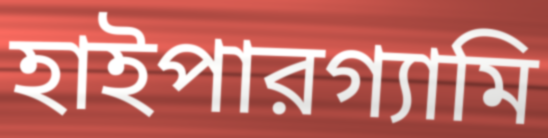
হাইপারগ্যামি